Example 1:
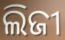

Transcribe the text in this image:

ଲିଜୀ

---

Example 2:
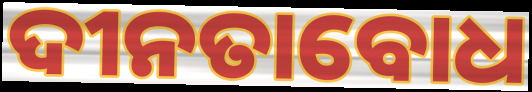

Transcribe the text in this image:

ଦୀନତାବୋଧ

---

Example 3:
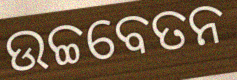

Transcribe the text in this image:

ଉଚ୍ଚବେତନ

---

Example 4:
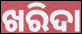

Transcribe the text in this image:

ଖରିଦା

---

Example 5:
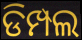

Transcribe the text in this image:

ଡିମ୍ପଲ